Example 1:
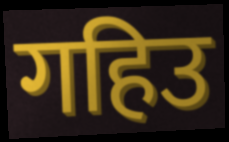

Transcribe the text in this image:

गहिउ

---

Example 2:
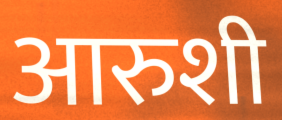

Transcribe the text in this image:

आरुशी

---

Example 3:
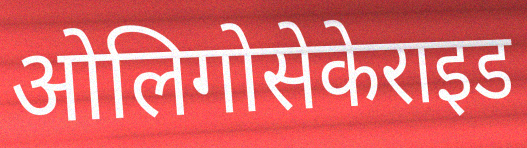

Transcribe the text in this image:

ओलिगोसेकेराइड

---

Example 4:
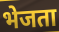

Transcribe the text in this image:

भेजता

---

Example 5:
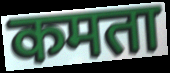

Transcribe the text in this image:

कमता